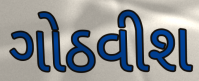
ગોઠવીશ